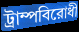
ট্রাম্পবিরোধী